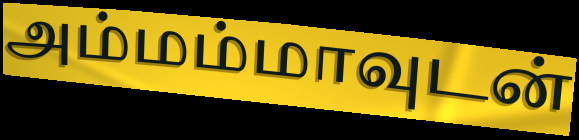
அம்மம்மாவுடன்